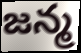
జన్మ